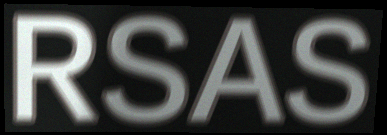
RSAS